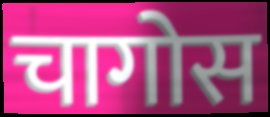
चागोस